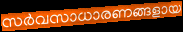
സർവസാധാരണങ്ങളായ